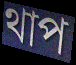
থাপ